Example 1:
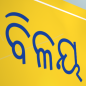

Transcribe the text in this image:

ବିଳୟ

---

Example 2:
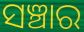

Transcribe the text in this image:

ସଞ୍ଚାର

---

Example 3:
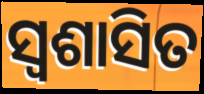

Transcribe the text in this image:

ସ୍ୱଶାସିତ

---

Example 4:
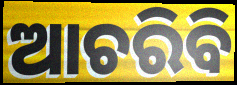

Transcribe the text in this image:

ଆଚରିବି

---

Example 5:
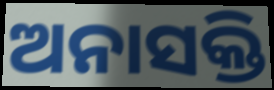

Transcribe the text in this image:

ଅନାସକ୍ତି